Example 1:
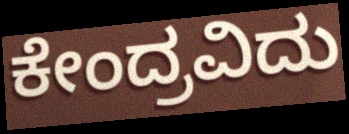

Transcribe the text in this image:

ಕೇಂದ್ರವಿದು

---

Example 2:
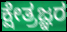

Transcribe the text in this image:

ಕ್ಷೇತ್ರಜ್ಞರ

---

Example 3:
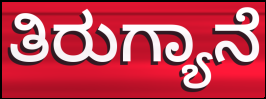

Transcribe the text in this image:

ತಿರುಗ್ಯಾನೆ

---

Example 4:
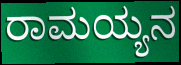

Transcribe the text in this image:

ರಾಮಯ್ಯನ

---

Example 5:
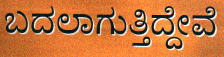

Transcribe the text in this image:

ಬದಲಾಗುತ್ತಿದ್ದೇವೆ